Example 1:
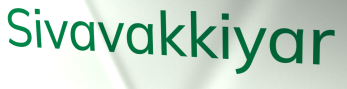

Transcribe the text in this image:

Sivavakkiyar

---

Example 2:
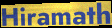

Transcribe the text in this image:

Hiramath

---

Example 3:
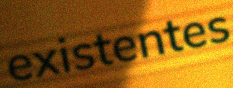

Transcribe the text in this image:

existentes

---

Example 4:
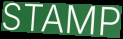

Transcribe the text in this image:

STAMP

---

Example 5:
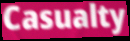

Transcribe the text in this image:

Casualty